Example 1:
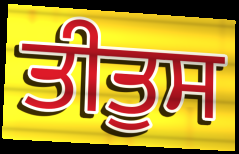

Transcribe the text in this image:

ਤੀਤੁਸ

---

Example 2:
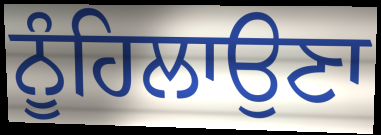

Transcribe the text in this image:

ਨੂੰਹਿਲਾਉਣਾ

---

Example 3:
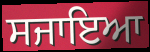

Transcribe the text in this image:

ਸਜਾਇਆ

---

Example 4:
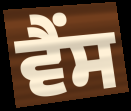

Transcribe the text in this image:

ਵੈਂਸ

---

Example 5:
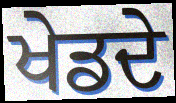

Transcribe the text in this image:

ਖੇਡਦੇ